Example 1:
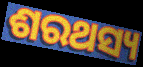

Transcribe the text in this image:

ଶରଥସ୍ୟ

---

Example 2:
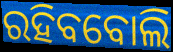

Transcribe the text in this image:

ରହିବବୋଲି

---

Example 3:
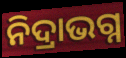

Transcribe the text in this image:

ନିଦ୍ରାଭଗ୍ନ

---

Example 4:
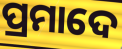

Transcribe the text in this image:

ପ୍ରମାଦେ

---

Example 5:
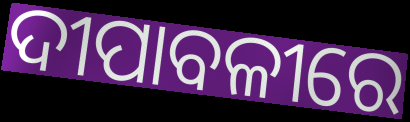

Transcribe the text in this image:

ଦୀପାବଳୀରେ